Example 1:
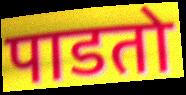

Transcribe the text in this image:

पाडतो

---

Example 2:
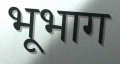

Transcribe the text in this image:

भूभाग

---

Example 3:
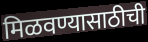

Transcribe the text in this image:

मिळवण्यासाठीची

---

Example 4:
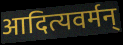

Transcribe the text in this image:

आदित्यवर्मन्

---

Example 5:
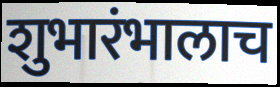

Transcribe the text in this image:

शुभारंभालाच